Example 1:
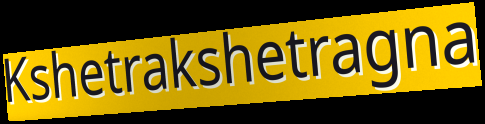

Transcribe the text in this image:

Kshetrakshetragna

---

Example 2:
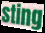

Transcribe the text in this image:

sting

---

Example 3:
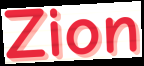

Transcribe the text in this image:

Zion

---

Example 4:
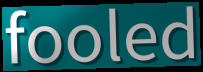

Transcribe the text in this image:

fooled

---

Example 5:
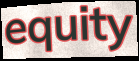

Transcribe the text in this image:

equity